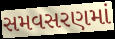
સમવસરણમાં